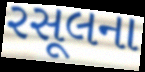
રસૂલના